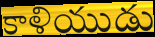
కాళియుడు